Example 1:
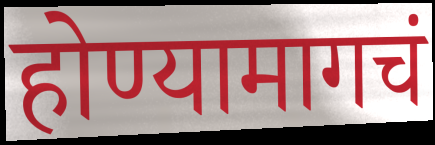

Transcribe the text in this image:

होण्यामागचं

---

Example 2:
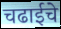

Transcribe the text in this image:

चढाईचे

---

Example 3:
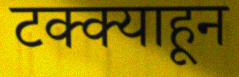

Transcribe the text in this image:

टक्क्याहून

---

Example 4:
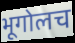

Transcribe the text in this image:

भूगोलच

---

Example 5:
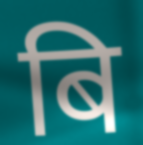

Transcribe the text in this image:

बि